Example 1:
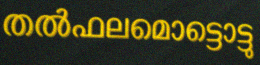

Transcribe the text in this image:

തൽഫലമൊട്ടൊട്ടു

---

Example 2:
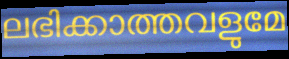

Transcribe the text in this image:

ലഭിക്കാത്തവളുമേ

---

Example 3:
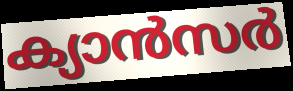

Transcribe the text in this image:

ക്യാൻസർ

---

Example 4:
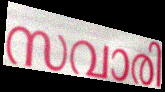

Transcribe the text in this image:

സവാരി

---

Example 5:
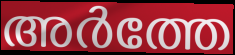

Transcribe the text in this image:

അർത്തേ